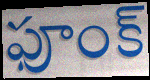
ఫూంక్